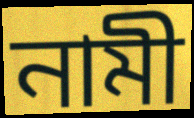
নামী